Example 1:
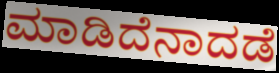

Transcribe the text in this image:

ಮಾಡಿದೆನಾದಡೆ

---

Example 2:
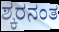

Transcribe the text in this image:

ಶ್ಕರನಂತ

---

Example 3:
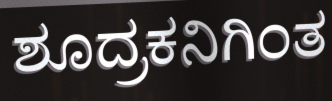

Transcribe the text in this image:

ಶೂದ್ರಕನಿಗಿಂತ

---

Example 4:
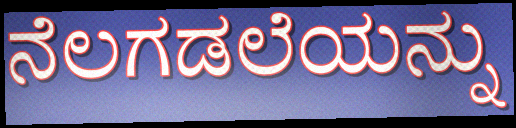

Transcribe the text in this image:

ನೆಲಗಡಲೆಯನ್ನು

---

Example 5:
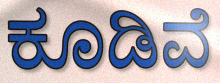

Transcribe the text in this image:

ಕೂಡಿವೆ